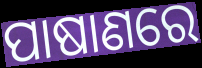
ପାଷାଣରେ